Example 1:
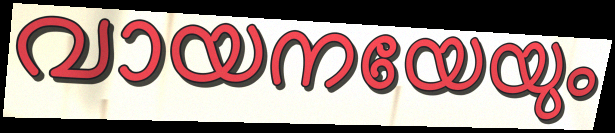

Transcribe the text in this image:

വായനയേയും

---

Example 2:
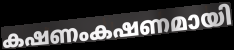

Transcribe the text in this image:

കഷണംകഷണമായി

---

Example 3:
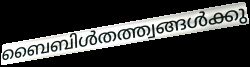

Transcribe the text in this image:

ബൈബിൾതത്ത്വങ്ങൾക്കു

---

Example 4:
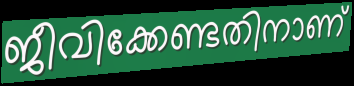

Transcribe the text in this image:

ജീവിക്കേണ്ടതിനാണ്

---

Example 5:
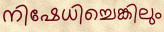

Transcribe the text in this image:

നിഷേധിച്ചെങ്കിലും